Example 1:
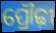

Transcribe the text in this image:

ପ୍ରୌଢ଼ୀ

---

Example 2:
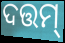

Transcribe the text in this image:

ଦତ୍ତମ୍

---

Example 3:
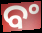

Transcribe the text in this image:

ବଂ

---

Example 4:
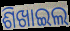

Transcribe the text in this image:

ଶିଖାଇଲ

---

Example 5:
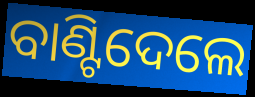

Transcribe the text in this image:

ବାଣ୍ଟିଦେଲେ